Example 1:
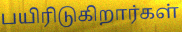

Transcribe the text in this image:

பயிரிடுகிறார்கள்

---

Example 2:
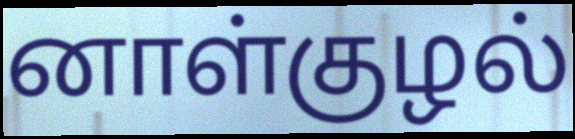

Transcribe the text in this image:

னாள்குழல்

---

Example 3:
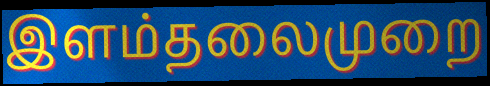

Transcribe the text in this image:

இளம்தலைமுறை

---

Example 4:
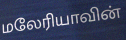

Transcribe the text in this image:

மலேரியாவின்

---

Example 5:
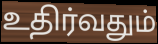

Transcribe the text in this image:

உதிர்வதும்